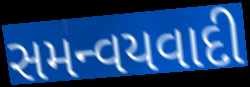
સમન્વયવાદી